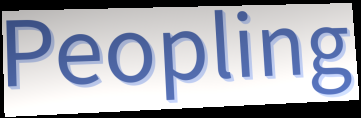
Peopling